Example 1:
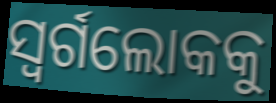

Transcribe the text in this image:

ସ୍ବର୍ଗଲୋକକୁ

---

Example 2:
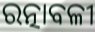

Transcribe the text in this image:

ରତ୍ନାବଳୀ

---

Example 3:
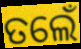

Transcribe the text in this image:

ତଲେଁ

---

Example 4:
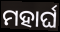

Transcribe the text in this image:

ମହାର୍ଘ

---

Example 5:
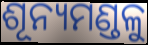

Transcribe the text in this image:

ଶୂନ୍ୟମଣ୍ଡଳୁ